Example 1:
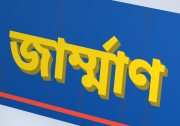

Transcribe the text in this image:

জার্ম্মাণ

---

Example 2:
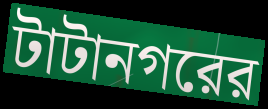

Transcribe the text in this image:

টাটানগরের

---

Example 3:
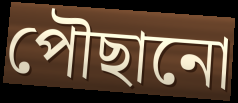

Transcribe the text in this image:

পৌছানো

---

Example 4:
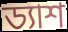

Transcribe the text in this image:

ড্যাশ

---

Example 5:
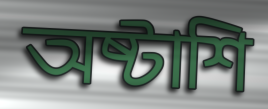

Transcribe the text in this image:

অষ্টাশি